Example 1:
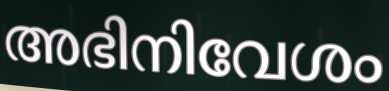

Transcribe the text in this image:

അഭിനിവേശം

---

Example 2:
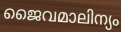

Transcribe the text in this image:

ജൈവമാലിന്യം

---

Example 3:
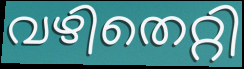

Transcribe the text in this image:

വഴിതെറ്റി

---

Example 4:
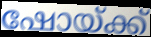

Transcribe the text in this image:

ഷോയ്ക്ക്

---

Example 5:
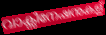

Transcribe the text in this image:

വാക്സിനേഷനുകള്